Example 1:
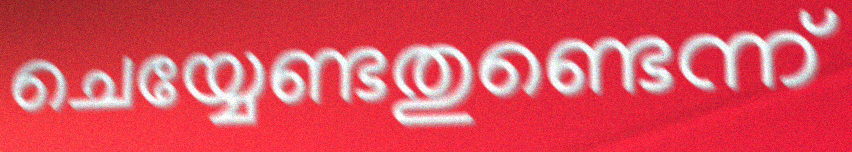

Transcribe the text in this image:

ചെയ്യേണ്ടതുണ്ടെന്ന്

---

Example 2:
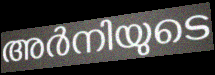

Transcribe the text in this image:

അർനിയുടെ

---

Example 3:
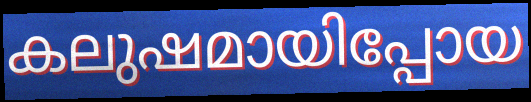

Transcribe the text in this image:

കലുഷമായിപ്പോയ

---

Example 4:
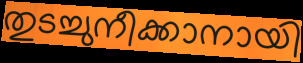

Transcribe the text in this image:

തുടച്ചുനീക്കാനായി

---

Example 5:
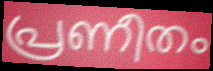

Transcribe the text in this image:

പ്രണീതം